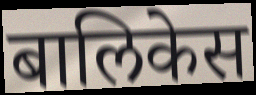
बालिकेस